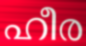
ഹീര